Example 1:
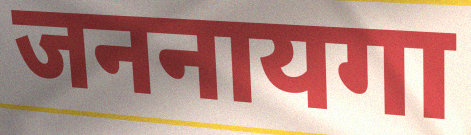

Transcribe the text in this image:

जननायगा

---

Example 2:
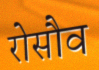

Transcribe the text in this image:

रोसौव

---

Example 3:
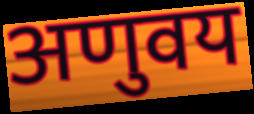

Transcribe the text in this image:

अणुवय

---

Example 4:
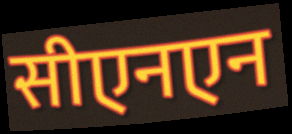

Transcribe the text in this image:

सीएनएन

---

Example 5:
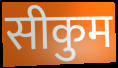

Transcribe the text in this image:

सीकुम